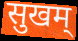
सुखम्